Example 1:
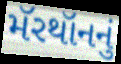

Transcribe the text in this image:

મૅરથૉનનું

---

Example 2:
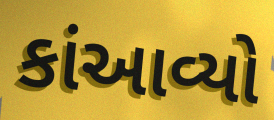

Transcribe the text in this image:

કાંઆવ્યો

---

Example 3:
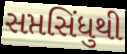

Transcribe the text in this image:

સપ્તસિંધુથી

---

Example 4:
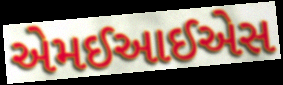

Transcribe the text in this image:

એમઈઆઈએસ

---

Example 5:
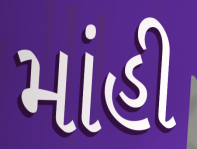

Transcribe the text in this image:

માંહી